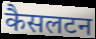
कैसलटन